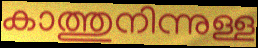
കാത്തുനിന്നുള്ള